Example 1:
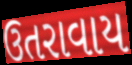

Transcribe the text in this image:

ઉતરાવાય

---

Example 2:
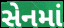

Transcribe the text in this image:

સેનમાં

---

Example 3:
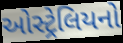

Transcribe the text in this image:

ઓસ્ટ્રેલિયનો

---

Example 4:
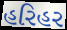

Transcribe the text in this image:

હરિહર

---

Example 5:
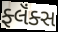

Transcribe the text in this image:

ફ્લૅંક્સ